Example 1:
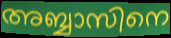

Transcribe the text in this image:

അബ്ബാസിനെ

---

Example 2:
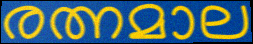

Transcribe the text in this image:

രത്നമാല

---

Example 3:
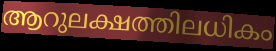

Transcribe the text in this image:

ആറുലക്ഷത്തിലധികം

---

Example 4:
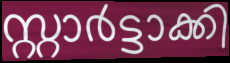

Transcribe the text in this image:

സ്റ്റാർട്ടാക്കി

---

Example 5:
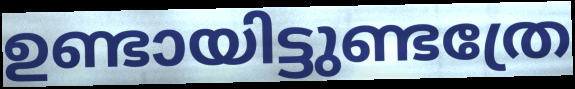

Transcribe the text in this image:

ഉണ്ടായിട്ടുണ്ടത്രേ